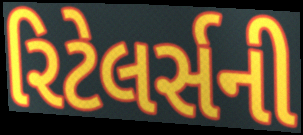
રિટેલર્સની